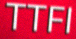
TTFI